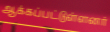
ஆக்கப்பட்டுள்ளனர்